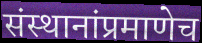
संस्थानांप्रमाणेच